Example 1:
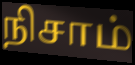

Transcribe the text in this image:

நிசாம்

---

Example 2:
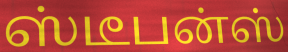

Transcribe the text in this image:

ஸ்டீபன்ஸ்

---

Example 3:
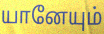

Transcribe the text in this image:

யானேயும்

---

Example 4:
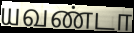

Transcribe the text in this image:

யவண்டா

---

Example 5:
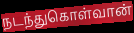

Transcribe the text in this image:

நடந்துகொள்வான்